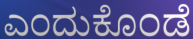
ಎಂದುಕೊಂಡೆ